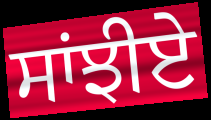
ਸਾਂਝੀਏ